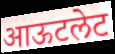
आऊटलेट